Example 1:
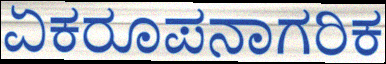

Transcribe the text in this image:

ಏಕರೂಪನಾಗರಿಕ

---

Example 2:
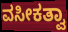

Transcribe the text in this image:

ವಸೀಕತ್ವಾ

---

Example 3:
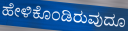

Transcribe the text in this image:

ಹೇಳಿಕೊಂಡಿರುವುದೂ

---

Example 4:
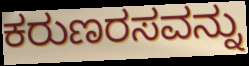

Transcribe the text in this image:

ಕರುಣರಸವನ್ನು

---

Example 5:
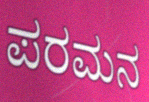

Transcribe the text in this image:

ಪರಮನ